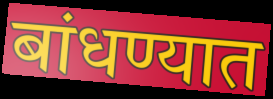
बांधण्‍यात